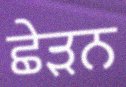
ਛੇੜਨ